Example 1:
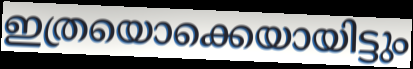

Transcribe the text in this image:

ഇത്രയൊക്കെയായിട്ടും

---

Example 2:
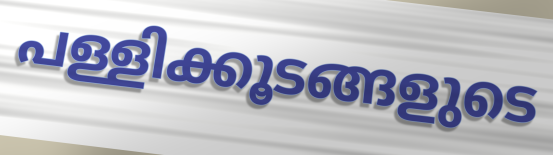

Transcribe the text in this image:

പള്ളിക്കൂടങ്ങളുടെ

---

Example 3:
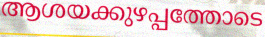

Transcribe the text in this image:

ആശയക്കുഴപ്പത്തോടെ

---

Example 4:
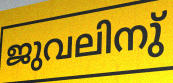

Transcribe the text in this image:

ജുവലിനു്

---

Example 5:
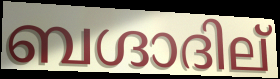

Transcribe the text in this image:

ബഗ്ദാദില്